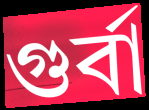
গুর্বা